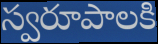
స్వరూపాలకి